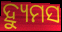
ହ୍ୟୁମସ